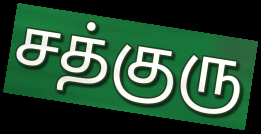
சத்குரு